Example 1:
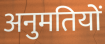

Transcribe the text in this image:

अनुमतियों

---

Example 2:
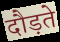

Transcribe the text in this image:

दौड़ते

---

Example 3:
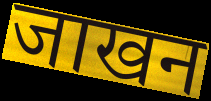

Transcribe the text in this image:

जाखन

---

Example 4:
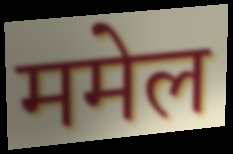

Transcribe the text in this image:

ममेल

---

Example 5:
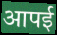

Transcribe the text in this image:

आपई